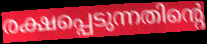
രക്ഷപ്പെടുന്നതിന്റെ